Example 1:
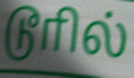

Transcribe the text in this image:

டூரில்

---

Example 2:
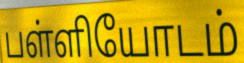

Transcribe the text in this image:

பள்ளியோடம்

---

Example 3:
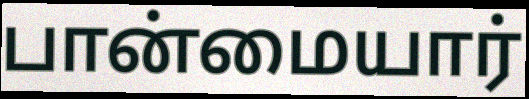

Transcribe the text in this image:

பான்மையார்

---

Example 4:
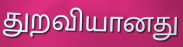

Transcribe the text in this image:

துறவியானது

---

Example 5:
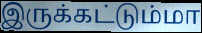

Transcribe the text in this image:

இருக்கட்டும்மா